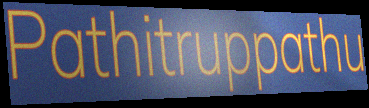
Pathitruppathu